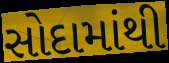
સોદામાંથી